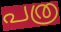
പത്ര